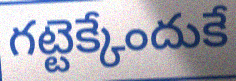
గట్టెక్కేందుకే